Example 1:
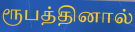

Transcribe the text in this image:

ரூபத்தினால்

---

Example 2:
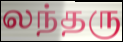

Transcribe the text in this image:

லந்தரு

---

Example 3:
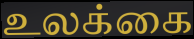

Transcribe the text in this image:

உலக்கை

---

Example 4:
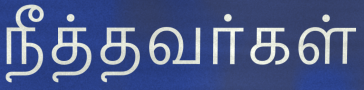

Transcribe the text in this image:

நீத்தவர்கள்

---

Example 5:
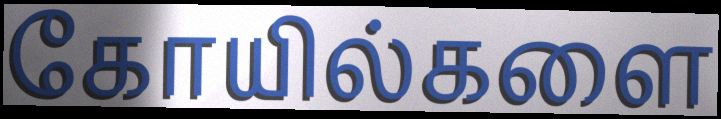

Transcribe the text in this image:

கோயில்களை